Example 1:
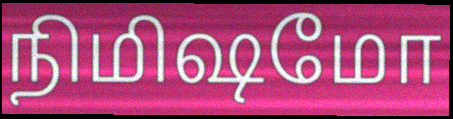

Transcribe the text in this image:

நிமிஷமோ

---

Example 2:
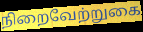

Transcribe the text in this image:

நிறைவேற்றுகை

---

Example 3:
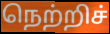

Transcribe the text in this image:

நெற்றிச்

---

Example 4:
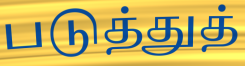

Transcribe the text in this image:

படுத்துத்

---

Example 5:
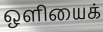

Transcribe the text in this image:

ஒளியைக்